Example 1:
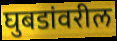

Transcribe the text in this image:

घुबडांवरील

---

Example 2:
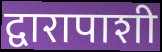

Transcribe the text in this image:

द्वारापाशी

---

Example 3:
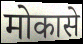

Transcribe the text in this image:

मोकासे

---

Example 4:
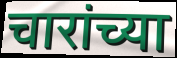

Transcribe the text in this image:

चारांच्या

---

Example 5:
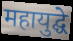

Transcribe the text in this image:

महायुद्घे